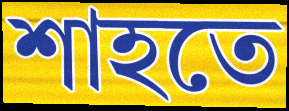
শাহতে